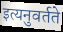
इत्यनुवर्तते